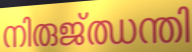
നിരുജ്ഝന്തി